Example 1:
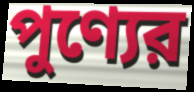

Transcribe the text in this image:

পুণ্যের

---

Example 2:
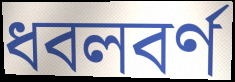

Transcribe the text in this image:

ধবলবর্ণ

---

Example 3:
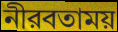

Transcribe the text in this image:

নীরবতাময়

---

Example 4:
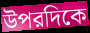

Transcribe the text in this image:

উপরদিকে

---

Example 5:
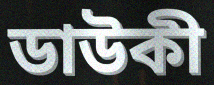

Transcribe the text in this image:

ডাউকী